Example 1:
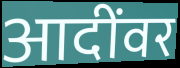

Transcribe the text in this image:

आदींवर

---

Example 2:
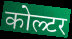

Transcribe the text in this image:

कोल्टर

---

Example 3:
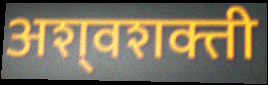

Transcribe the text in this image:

अश्वशक्ती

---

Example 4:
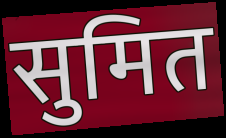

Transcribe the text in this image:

सुमित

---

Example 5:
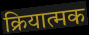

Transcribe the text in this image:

क्रियात्मक